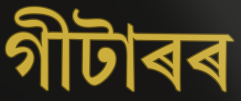
গীটাৰৰ